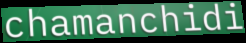
chamanchidi